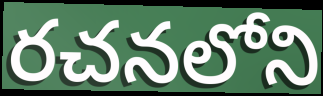
రచనలోని